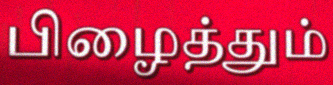
பிழைத்தும்